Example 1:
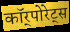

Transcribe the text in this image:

कॉर्पोरेट्‌स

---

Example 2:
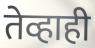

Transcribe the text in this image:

तेव्हाही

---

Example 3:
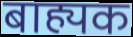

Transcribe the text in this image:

बाह्यक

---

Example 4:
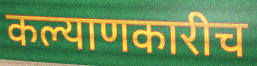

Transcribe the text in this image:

कल्याणकारीच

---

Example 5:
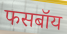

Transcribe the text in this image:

फसबॉय